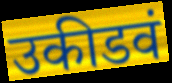
उकीडवं